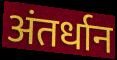
अंतर्धान